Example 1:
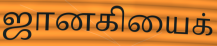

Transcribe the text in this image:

ஜானகியைக்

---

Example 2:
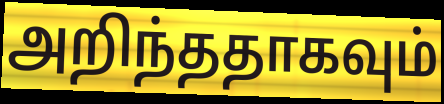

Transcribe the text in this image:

அறிந்ததாகவும்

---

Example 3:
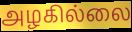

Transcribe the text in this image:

அழகில்லை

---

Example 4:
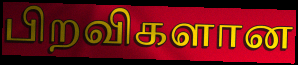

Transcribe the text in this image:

பிறவிகளான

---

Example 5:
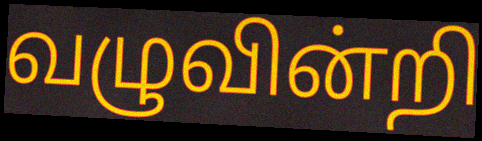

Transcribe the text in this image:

வழுவின்றி